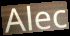
Alec